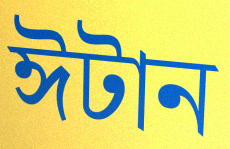
ঈটান